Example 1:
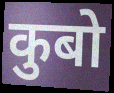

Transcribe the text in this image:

कुबो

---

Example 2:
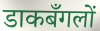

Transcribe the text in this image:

डाकबँगलों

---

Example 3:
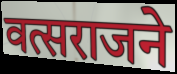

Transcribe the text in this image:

वत्सराजने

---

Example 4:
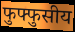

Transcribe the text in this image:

फुफ्फुसीय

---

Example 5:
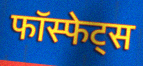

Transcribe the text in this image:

फॉस्फेट्स